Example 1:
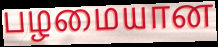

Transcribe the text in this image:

பழமையான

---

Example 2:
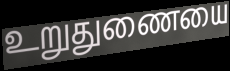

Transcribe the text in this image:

உறுதுணையை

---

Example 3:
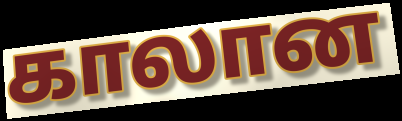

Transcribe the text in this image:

காலான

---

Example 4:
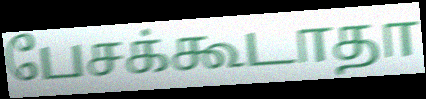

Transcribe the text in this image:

பேசக்கூடாதா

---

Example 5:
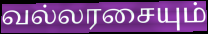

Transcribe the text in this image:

வல்லரசையும்